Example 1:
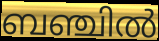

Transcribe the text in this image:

ബഞ്ചിൽ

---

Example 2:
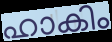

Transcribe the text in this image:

ഹാകിം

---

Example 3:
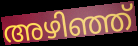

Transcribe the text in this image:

അഴിഞ്ഞ്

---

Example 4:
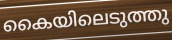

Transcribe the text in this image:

കൈയിലെടുത്തു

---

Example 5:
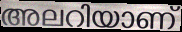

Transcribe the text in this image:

അലറിയാണ്